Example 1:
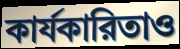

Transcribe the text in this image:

কার্যকারিতাও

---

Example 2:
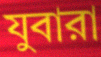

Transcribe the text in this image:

যুবারা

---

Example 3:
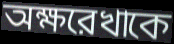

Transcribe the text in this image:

অক্ষরেখাকে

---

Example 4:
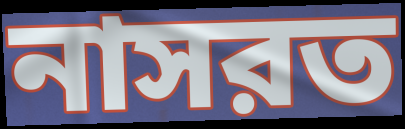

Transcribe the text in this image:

নাসরত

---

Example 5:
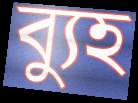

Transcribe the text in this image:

ব্যুহ